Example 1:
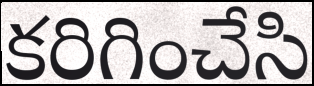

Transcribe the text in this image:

కరిగించేసి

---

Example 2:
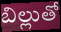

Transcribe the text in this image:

బిల్లుతో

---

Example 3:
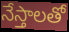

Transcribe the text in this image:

నేస్తాలతో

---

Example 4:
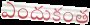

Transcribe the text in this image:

ఎందుకంత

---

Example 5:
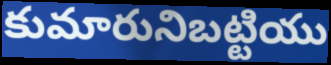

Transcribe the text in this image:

కుమారునిబట్టియు